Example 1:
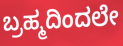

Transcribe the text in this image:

ಬ್ರಹ್ಮದಿಂದಲೇ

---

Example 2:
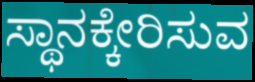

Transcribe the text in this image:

ಸ್ಥಾನಕ್ಕೇರಿಸುವ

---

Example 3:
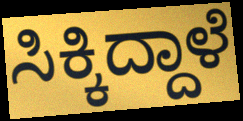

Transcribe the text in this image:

ಸಿಕ್ಕಿದ್ದಾಳೆ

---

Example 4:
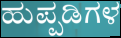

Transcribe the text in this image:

ಹುಪ್ಪಡಿಗಳ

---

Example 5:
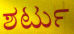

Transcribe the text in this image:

ಶರ್ಟು